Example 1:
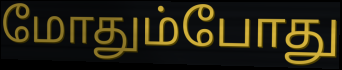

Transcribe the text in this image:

மோதும்போது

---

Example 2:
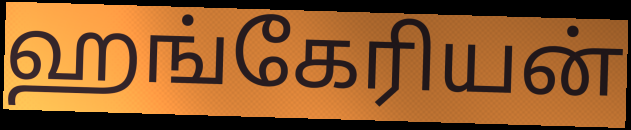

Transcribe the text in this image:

ஹங்கேரியன்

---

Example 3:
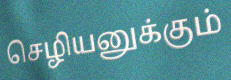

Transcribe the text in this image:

செழியனுக்கும்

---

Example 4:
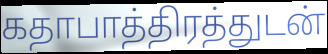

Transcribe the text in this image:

கதாபாத்திரத்துடன்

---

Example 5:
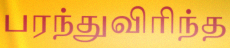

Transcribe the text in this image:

பரந்துவிரிந்த